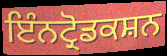
ਇੰਨਟ੍ਰੋਡਕਸ਼ਨ